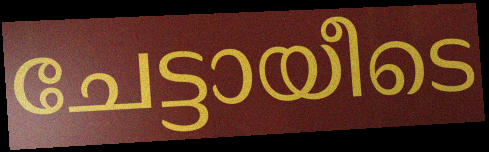
ചേട്ടായീടെ